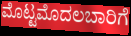
ಮೊಟ್ಟಮೊದಲಬಾರಿಗೆ